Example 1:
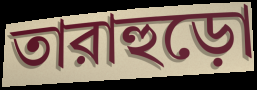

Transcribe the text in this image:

তারাহুড়ো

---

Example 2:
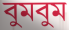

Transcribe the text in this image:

বুমবুম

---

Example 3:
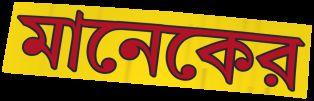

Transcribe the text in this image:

মানেকের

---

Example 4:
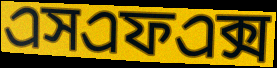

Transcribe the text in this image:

এসএফএক্স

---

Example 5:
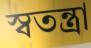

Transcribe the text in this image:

স্বতন্ত্রা